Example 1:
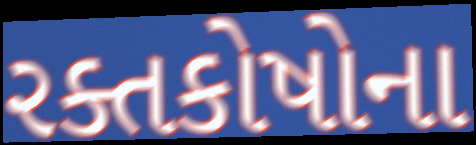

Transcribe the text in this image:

રક્તકોષોના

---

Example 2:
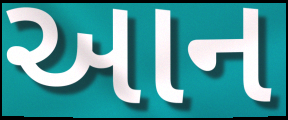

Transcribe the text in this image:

આન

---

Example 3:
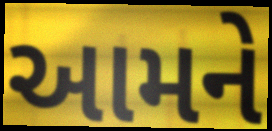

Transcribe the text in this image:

આમને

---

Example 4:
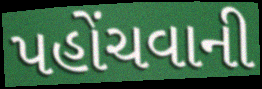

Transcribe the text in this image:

પહોંચવાની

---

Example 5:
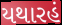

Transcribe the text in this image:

યથારહં